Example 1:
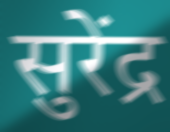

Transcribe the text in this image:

सुरेंद्र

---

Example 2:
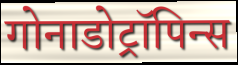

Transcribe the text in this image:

गोनाडोट्रॉपिन्स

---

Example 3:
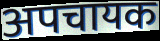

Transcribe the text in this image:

अपचायक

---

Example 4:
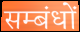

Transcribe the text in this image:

सम्बंधों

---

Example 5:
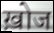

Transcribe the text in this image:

ख़ोज